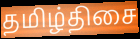
தமிழ்திசை